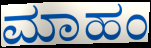
ಮಾಹಂ